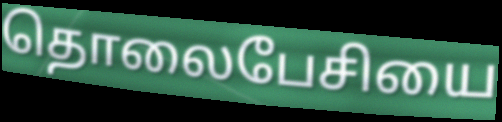
தொலைபேசியை